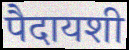
पैदायशी